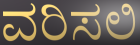
ವರಿಸಲಿ